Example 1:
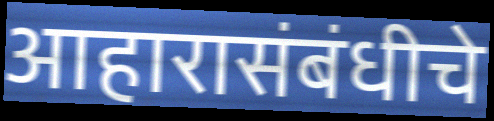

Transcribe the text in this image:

आहारासंबंधीचे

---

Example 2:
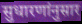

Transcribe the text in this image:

सुधारणांनुसार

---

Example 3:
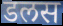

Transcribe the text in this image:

डलस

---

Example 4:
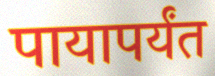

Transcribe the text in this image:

पायापर्यंत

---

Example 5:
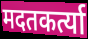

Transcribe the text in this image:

मदतकर्त्या